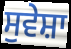
ਸੁਵੇਸ਼ਾ